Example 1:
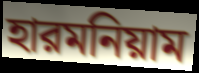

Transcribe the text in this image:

হারমনিয়াম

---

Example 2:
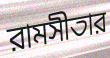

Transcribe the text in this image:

রামসীতার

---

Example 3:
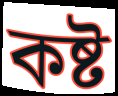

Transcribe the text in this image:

কষ্ট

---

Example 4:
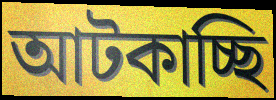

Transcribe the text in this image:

আটকাচ্ছি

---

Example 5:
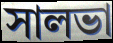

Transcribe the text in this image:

সালভা